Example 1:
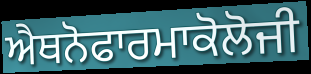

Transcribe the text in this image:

ਐਥਨੋਫਾਰਮਾਕੋਲੋਜੀ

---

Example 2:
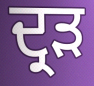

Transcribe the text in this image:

ਦ੍ਰੜ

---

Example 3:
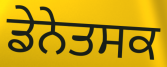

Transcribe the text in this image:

ਡੇਨੇਤਸਕ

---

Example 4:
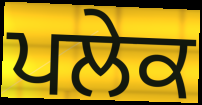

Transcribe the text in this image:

ਪਲੇਕ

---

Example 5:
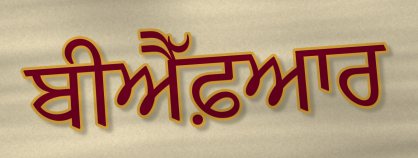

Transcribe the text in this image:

ਬੀਐੱਫ਼ਆਰ